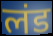
लंड